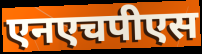
एनएचपीएस